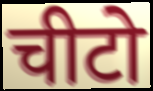
चीटो